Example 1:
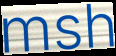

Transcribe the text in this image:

msh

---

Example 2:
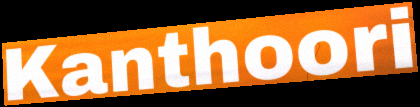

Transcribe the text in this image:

Kanthoori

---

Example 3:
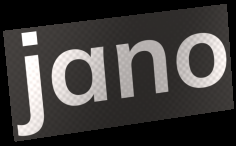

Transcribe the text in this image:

jano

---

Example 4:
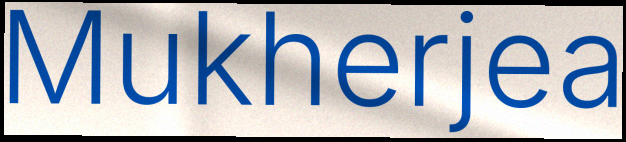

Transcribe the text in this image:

Mukherjea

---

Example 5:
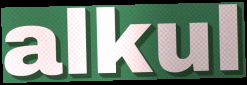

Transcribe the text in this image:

alkul